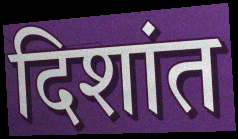
दिशांत